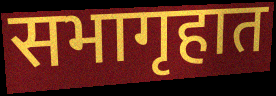
सभागृहात